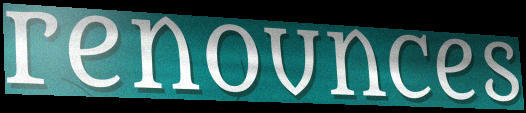
renounces